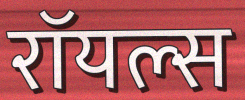
रॉयल्‍स